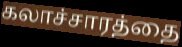
கலாச்சாரத்தை